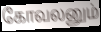
கோவலனும்